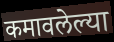
कमावलेल्या